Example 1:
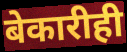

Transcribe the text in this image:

बेकारीही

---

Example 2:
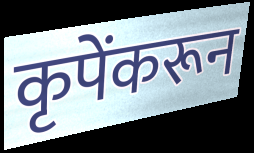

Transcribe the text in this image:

कृपेंकरून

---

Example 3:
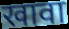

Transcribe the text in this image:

खावा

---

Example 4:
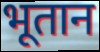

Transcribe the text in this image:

भूतान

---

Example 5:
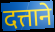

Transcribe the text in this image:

दत्ताने